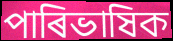
পাৰিভাষিক